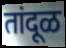
तांदूळ